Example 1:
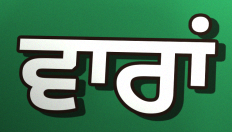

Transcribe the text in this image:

ਵਾਰਾਂ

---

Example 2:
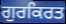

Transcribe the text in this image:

ਗੁਰਕਿਰਤ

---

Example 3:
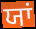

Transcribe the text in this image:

ਯਾਂ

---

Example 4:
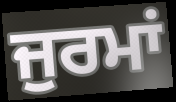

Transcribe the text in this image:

ਜੁਰਮਾਂ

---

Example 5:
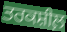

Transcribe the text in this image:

ਤਰਕਸ਼ੀਲ਼